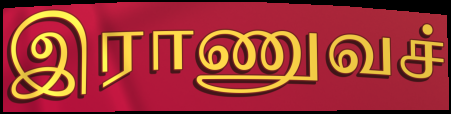
இராணுவச்